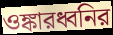
ওঙ্কারধ্বনির